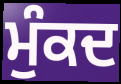
ਮੁੰਕਦ